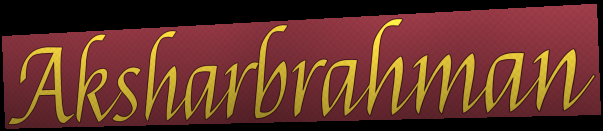
Aksharbrahman